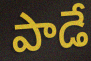
పాడే